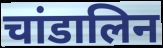
चांडालिन